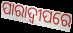
ପାରାଦ୍ୱୀପରେ